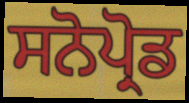
ਸਨੋਪ੍ਰੋਡ